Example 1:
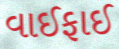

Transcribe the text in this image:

વાઈફાઈ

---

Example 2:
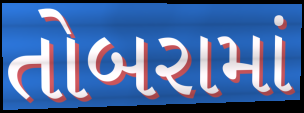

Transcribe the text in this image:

તોબરામાં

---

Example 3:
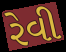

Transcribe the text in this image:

રેવી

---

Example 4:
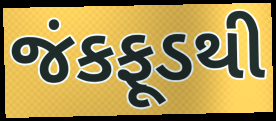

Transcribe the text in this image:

જંકફૂડથી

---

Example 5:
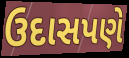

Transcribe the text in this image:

ઉદાસપણે